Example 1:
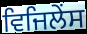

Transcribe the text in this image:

ਵਿਜਿਲੇਂਸ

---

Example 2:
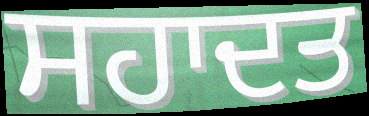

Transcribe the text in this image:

ਸਹਾਦਤ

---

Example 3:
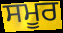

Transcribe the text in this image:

ਸਮੂਰ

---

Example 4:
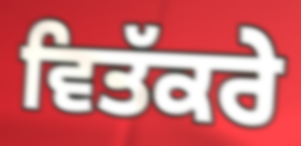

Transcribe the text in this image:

ਵਿਤੱਕਰੇ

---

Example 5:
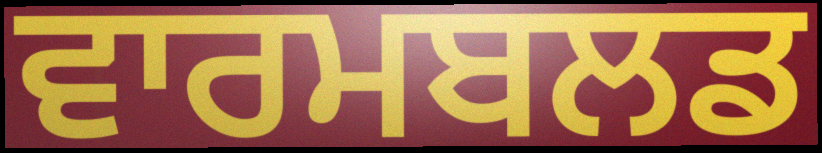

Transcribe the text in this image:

ਵਾਰਮਬਲਡ